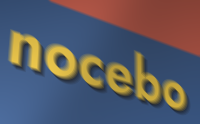
nocebo